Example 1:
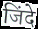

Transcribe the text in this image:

जिंदे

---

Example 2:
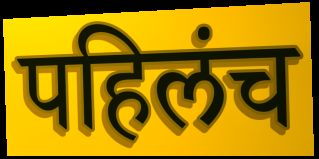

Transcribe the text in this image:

पहिलंच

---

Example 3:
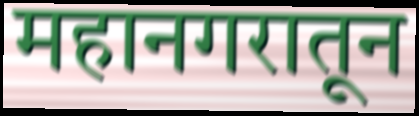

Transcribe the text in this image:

महानगरातून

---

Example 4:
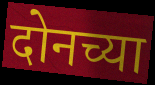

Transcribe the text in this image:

दोनच्या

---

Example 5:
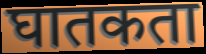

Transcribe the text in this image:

घातकता